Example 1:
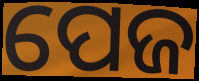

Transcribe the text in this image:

ପେଜ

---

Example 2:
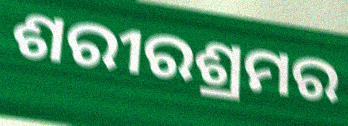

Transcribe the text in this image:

ଶରୀରଶ୍ରମର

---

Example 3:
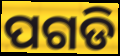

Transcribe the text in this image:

ପଗଡି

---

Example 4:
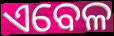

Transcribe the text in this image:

ଏବେଳ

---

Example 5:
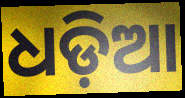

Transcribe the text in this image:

ଧଡ଼ିଆ